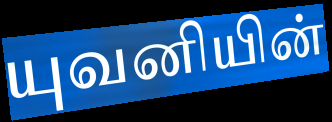
யுவனியின்